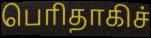
பெரிதாகிச்